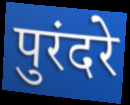
पुरंदरे